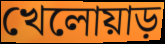
খেলোয়াড়